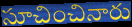
సూచించినారు